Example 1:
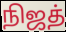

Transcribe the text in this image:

நிஜத்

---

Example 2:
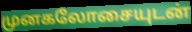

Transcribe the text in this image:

முனகலோசையுடன்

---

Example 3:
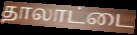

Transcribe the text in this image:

தாலாட்டை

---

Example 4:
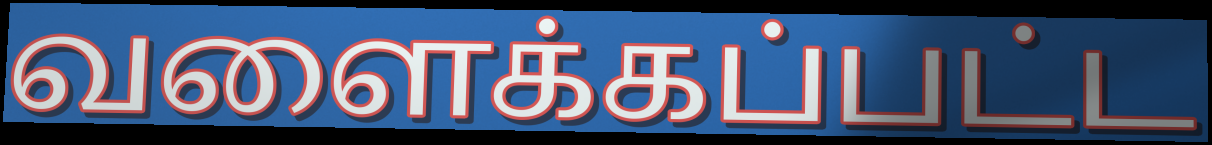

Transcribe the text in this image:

வளைக்கப்பட்ட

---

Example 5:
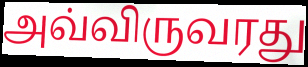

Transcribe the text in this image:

அவ்விருவரது